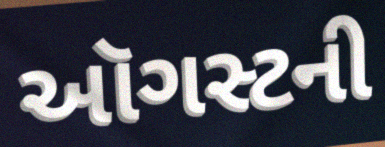
ઑગસ્ટની